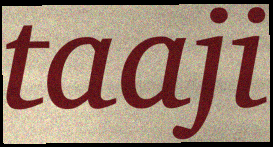
taaji